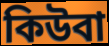
কিউবা